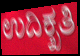
ಉದಿಕ್ಖತಿ